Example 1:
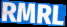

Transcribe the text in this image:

RMRL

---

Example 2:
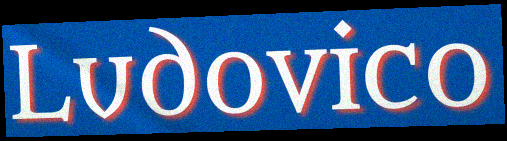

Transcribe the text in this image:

Ludovico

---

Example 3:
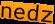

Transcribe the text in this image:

nedz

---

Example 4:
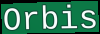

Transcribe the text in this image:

Orbis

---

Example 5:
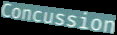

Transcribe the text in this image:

Concussion